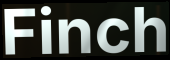
Finch